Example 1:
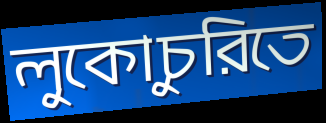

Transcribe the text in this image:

লুকোচুরিতে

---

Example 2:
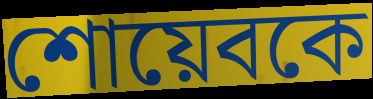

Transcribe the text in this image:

শোয়েবকে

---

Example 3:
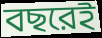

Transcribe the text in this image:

বছরেই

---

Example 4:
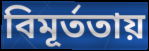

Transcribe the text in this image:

বিমূর্ততায়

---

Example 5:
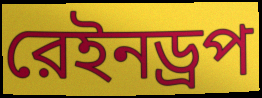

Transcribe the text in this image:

রেইনড্রপ